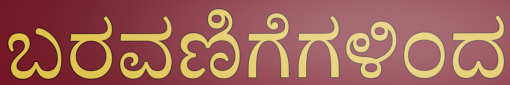
ಬರವಣಿಗೆಗಳಿಂದ